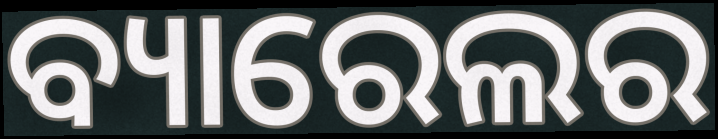
ବ୍ୟାରେଲର